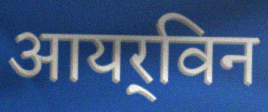
आयर्विन